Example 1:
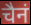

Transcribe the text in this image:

चैनं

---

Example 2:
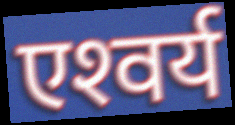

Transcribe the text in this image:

एश्‍वर्य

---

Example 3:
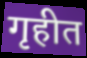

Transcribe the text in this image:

गृहीत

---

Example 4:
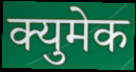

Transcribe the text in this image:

क्युमेक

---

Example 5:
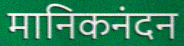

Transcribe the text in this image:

मानिकनंदन